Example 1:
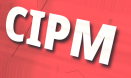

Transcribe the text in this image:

CIPM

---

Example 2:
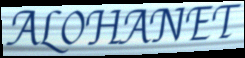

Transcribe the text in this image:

ALOHANET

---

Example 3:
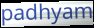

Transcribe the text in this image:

padhyam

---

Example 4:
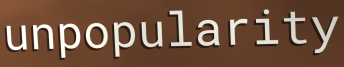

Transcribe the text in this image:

unpopularity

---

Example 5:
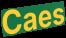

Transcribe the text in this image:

Caes